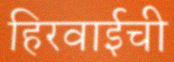
हिरवाईची